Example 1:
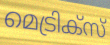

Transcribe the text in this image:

മെട്രിക്സ്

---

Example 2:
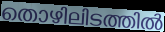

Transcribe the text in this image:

തൊഴിലിടത്തിൽ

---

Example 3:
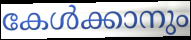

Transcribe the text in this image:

കേൾക്കാനും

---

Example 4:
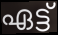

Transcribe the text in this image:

ഏട്ട്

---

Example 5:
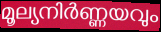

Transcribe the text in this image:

മൂല്യനിർണ്ണയവും